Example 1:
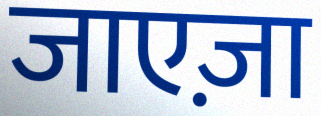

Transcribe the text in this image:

जाएज़ा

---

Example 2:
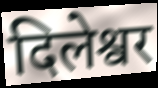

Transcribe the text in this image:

दिलेश्वर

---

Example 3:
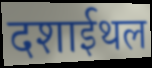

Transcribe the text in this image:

दशाईथल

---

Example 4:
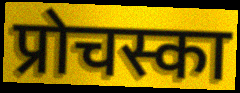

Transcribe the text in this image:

प्रोचस्का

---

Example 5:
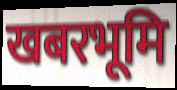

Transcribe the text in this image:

खबरभूमि